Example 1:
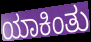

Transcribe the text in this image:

ಯಾಕಿಂತು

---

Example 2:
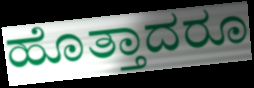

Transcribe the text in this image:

ಹೊತ್ತಾದರೂ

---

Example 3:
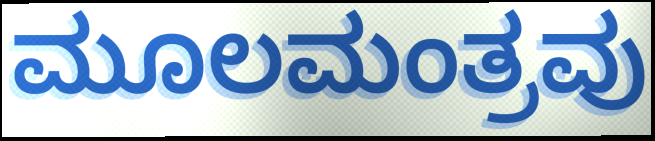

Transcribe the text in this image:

ಮೂಲಮಂತ್ರವು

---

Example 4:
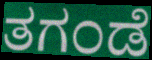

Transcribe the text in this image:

ತಗಂಡೆ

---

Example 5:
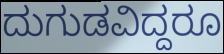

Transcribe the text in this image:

ದುಗುಡವಿದ್ದರೂ